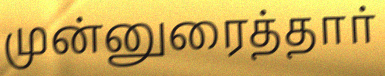
முன்னுரைத்தார்